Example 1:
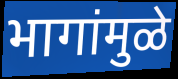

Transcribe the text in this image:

भागांमुळे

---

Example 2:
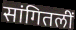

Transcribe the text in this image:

सांगितलीं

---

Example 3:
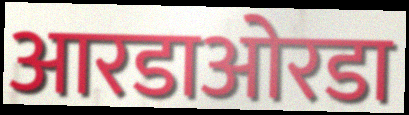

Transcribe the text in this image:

आरडाओरडा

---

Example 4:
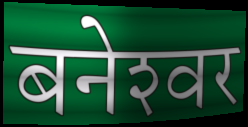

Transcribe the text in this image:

बनेश्वर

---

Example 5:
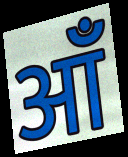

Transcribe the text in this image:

आँ